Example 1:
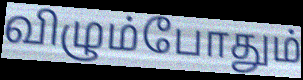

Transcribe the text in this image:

விழும்போதும்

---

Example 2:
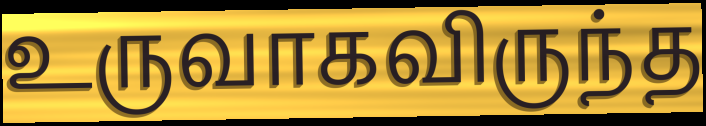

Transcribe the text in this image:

உருவாகவிருந்த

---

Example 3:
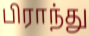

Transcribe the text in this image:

பிராந்து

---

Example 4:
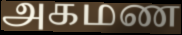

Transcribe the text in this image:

அகமண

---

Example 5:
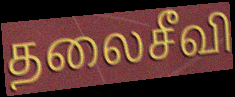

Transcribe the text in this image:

தலைசீவி